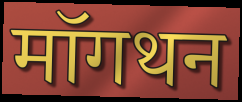
मॉगथन